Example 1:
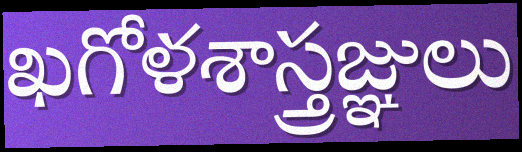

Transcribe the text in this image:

ఖగోళశాస్త్రజ్ఞులు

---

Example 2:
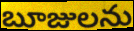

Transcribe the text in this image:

బూజులను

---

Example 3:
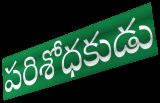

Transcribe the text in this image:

పరిశోధకుడు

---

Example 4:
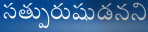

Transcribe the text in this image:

సత్పురుషుడనని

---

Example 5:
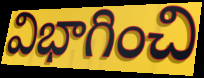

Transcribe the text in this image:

విభాగించి